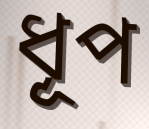
ধূপ